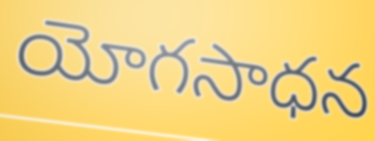
యోగసాధన